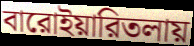
বারোইয়ারিতলায়